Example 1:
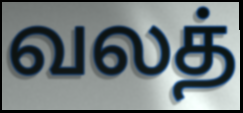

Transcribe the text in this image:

வலத்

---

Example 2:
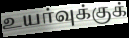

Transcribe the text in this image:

உயர்வுக்குக்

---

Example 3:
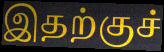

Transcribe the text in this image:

இதற்குச்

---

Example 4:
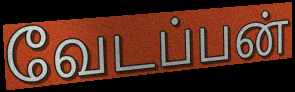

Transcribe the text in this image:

வேடப்பன்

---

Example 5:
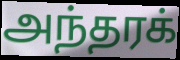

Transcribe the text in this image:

அந்தரக்